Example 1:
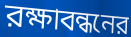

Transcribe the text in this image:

রক্ষাবন্ধনের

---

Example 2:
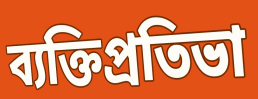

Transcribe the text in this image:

ব্যক্তিপ্রতিভা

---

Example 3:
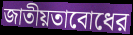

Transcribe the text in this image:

জাতীয়তাবোধের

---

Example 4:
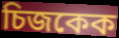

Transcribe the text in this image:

চিজকেক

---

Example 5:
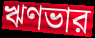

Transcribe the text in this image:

ঋণভার